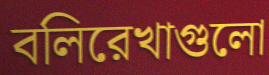
বলিরেখাগুলো